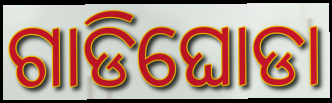
ଗାଡିଘୋଡା